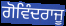
ਗੋਵਿੰਦਰਾਜੂ